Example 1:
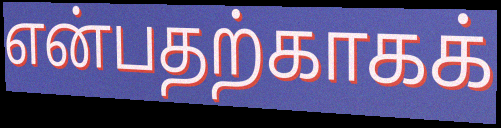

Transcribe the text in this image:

என்பதற்காகக்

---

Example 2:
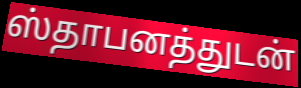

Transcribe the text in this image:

ஸ்தாபனத்துடன்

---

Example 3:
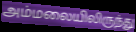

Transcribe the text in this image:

அம்மலையிலிருந்து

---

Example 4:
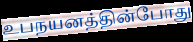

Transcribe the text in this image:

உபநயனத்தின்போது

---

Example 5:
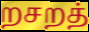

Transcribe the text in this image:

றசறத்